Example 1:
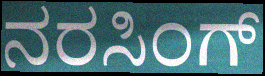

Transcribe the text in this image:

ನರಸಿಂಗ್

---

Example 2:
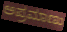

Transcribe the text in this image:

ಅಪ್ರಮಾಣು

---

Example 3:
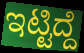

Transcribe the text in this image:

ಇಟ್ಟಿದ್ದೆ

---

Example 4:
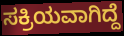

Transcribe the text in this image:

ಸಕ್ರಿಯವಾಗಿದ್ದೆ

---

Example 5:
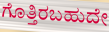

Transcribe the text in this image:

ಗೊತ್ತಿರಬಹುದೇ